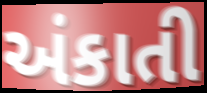
અંકાતી